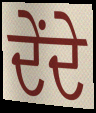
ਦੇਂਦੇ